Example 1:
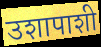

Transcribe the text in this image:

उशापाशी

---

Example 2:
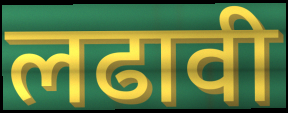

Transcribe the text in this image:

लढावी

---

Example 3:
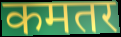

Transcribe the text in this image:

कमतर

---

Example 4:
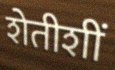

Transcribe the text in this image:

शेतीशीं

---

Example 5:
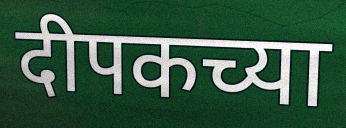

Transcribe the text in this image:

दीपकच्या